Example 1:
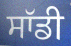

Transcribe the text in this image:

ਸਾੱਡੀ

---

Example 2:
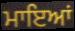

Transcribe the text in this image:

ਮਾਇਆਂ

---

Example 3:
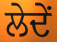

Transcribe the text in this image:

ਲੇਦੇਂ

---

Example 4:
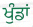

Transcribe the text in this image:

ਖੁੰਡਾਂ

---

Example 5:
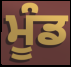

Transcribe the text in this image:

ਮੂੰਡ